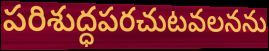
పరిశుద్ధపరచుటవలనను